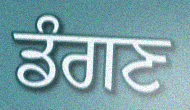
ਡੰਗਣ